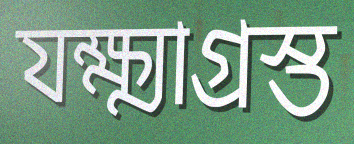
যক্ষ্মাগ্রস্ত